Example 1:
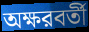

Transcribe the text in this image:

অক্ষরবর্তী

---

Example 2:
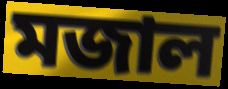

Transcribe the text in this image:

মজাল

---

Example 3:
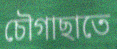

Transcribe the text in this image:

চৌগাছাতে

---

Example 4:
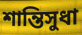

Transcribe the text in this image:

শান্তিসুধা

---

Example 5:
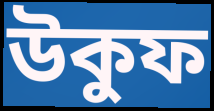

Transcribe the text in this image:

উকুফ